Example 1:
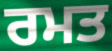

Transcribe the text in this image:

ਰਮਤ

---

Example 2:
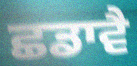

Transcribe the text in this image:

ਛਡਾਵੈ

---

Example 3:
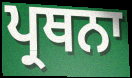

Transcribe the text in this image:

ਪ੍ਰਥਨਾ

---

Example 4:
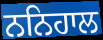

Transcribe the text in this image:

ਨਨਿਹਾਲ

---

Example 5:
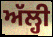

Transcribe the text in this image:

ਅੱਲ੍ਹੀ